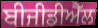
ਬੀਜੀਡੀਐੱਲ